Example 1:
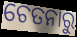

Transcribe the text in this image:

ଚେତନାରୁ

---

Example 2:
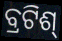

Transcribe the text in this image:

ବ୍ରଟିଶ୍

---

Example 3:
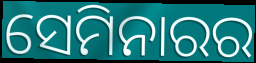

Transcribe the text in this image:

ସେମିନାରର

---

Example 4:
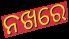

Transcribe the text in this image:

ନଖରେ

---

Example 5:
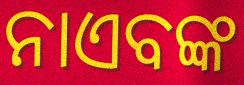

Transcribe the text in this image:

ନାଏବଙ୍କ